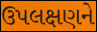
ઉપલક્ષણને